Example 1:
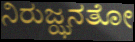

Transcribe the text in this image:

ನಿರುಜ್ಝನತೋ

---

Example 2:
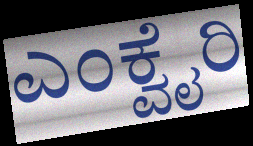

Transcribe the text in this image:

ಎಂಕ್ವೈರಿ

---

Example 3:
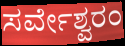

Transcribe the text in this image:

ಸರ್ವೇಶ್ವರಂ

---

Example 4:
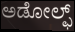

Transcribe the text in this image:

ಅಡೋಲ್ಫ್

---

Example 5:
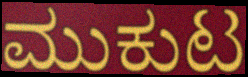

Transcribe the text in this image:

ಮುಕುಟ